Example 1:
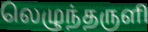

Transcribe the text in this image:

லெழுந்தருளி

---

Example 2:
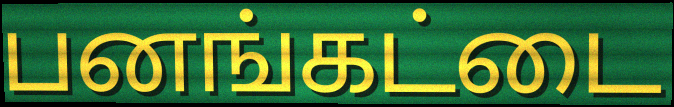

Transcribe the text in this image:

பனங்கட்டை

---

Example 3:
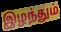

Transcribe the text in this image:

இழந்தும்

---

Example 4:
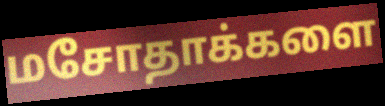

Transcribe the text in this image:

மசோதாக்களை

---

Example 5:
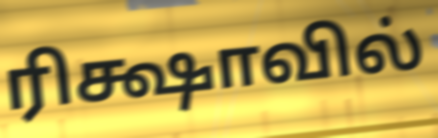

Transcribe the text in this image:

ரிக்ஷாவில்